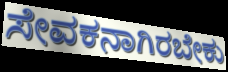
ಸೇವಕನಾಗಿರಬೇಕು